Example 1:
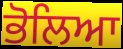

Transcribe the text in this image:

ਭੋਲਿਆ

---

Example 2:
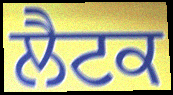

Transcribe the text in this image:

ਲੈਟਕ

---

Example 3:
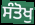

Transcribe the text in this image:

ਸੰਤੋਖੁ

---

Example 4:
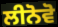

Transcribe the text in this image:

ਲੀਨੋਵੋ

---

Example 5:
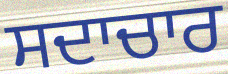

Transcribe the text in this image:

ਸਦਾਚਾਰ